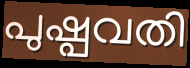
പുഷ്പവതി